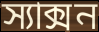
স্যাক্সন